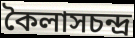
কৈলাসচন্দ্র